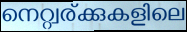
നെറ്റ്വര്ക്കുകളിലെ